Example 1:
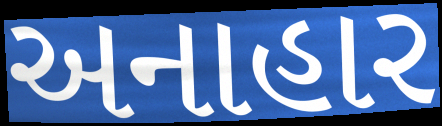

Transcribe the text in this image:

અનાહાર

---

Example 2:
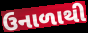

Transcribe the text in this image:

ઉનાળાથી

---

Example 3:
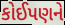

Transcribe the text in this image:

કોઈપણને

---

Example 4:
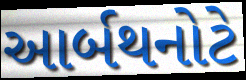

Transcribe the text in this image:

આર્બથનોટે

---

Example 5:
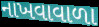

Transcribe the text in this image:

નાખવાવાળા